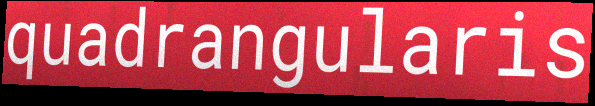
quadrangularis